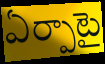
ఏర్పాటై